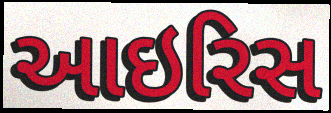
આઇરિસ